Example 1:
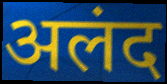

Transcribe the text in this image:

अलंद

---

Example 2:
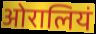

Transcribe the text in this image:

ओरालियं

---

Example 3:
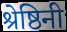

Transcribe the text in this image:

श्रेष्ठिनी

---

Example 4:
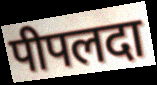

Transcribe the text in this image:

पीपलदा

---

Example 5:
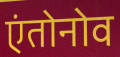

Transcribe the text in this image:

एंतोनोव